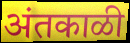
अंतकाळी